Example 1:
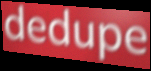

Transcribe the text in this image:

dedupe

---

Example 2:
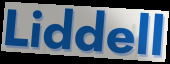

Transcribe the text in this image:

Liddell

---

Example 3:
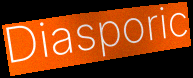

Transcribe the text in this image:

Diasporic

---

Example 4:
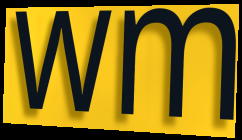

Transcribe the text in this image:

wm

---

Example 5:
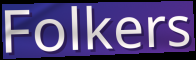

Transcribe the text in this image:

Folkers